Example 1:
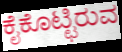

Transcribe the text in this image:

ಕೈಕೊಟ್ಟಿರುವ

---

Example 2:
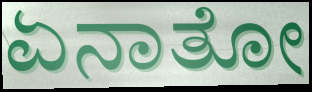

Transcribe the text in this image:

ಏನಾತೋ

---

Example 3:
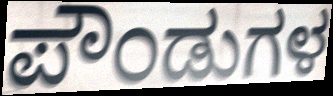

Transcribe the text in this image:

ಪೌಂಡುಗಳ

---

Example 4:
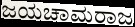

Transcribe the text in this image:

ಜಯಚಾಮರಾಜ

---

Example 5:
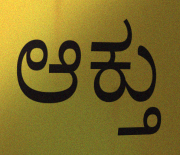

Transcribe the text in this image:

ಆಕ್ತು